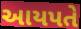
આયપતે